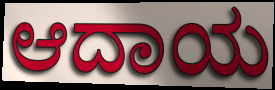
ಆದಾಯ